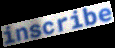
inscribe